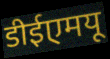
डीईएमयू